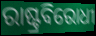
ରାଷ୍ଟ୍ରବିରୋଧୀ